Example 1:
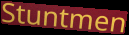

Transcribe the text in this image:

Stuntmen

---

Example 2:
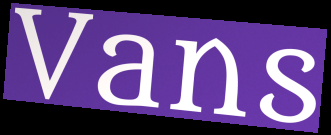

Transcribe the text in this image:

Vans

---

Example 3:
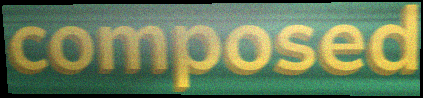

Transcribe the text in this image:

composed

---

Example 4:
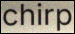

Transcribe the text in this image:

chirp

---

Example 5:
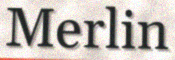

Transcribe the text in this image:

Merlin